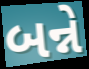
બન્ને